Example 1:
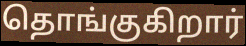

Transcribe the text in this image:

தொங்குகிறார்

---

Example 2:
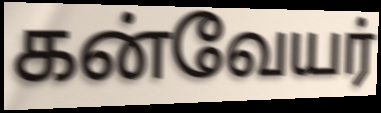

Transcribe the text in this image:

கன்வேயர்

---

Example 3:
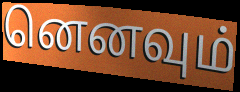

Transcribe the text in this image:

னெனவும்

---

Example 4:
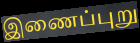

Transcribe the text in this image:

இணைப்புறு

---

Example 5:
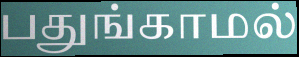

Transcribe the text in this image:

பதுங்காமல்